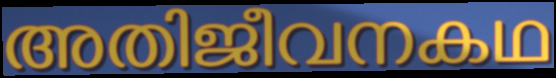
അതിജീവനകഥ